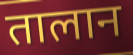
तालान